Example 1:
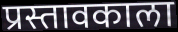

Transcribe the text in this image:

प्रस्तावकाला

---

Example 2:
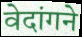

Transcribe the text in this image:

वेदांगने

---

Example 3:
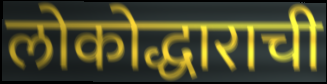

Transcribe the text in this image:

लोकोद्धाराची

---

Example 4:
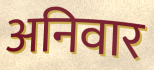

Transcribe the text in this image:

अनिवार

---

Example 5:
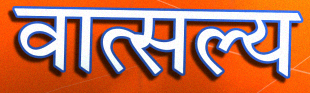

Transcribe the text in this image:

वात्सल्य